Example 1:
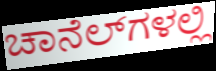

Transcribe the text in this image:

ಚಾನೆಲ್‍ಗಳಲ್ಲಿ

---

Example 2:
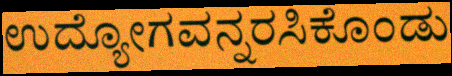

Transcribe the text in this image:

ಉದ್ಯೋಗವನ್ನರಸಿಕೊಂಡು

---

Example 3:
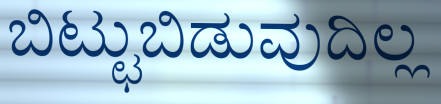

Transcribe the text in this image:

ಬಿಟ್ಟುಬಿಡುವುದಿಲ್ಲ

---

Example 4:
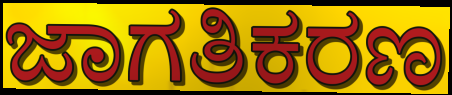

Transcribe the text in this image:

ಜಾಗತಿಕರಣ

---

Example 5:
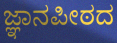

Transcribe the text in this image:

ಜ್ಞಾನಪೀಠದ